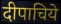
दीपाचिये